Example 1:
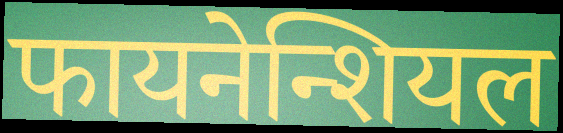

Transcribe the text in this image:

फायनेन्शियल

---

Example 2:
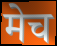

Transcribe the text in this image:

मेच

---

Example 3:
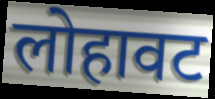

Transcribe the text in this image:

लोहावट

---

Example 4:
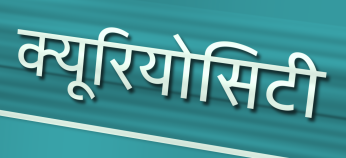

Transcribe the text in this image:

क्यूरियोसिटी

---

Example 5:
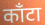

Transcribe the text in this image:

काँटा